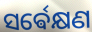
ସର୍ଵେକ୍ଷଣ